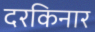
दरकिनार